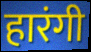
हारंगी